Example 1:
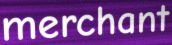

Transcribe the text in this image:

merchant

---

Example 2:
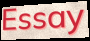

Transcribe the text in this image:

Essay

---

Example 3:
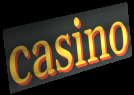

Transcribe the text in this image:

casino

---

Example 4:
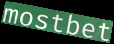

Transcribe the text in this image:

mostbet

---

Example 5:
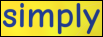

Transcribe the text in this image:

simply